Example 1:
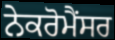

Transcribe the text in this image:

ਨੇਕਰੋਮੈਂਸਰ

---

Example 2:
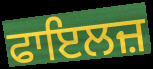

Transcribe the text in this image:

ਫਾਇਲਜ਼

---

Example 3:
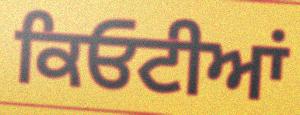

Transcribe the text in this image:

ਕਿਓਟੀਆਂ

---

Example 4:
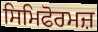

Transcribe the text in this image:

ਸਿਮਿਫੋਰਮਜ਼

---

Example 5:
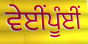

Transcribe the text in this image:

ਵੇਈਂਪੂੰਈਂ